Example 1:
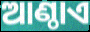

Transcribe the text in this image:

ଆଣ୍ଠାଏ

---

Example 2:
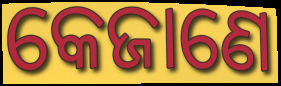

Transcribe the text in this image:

କେଜାଣେ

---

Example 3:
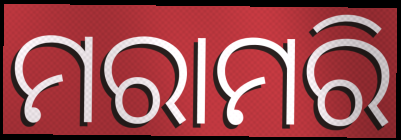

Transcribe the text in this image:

ମରାମରି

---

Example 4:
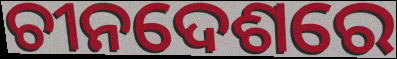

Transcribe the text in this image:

ଚୀନଦେଶରେ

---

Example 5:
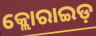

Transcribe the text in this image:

କ୍ଲୋରାଇଡ଼